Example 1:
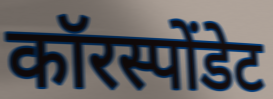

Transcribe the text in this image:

कॉरस्पोंडेट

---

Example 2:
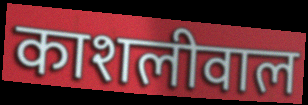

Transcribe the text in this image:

काशलीवाल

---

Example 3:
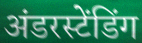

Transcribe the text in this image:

अंडरस्टेंडिंग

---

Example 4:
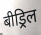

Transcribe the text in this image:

बीड्रिल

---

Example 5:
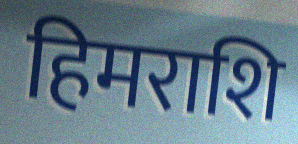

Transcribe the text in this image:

हिमराशि